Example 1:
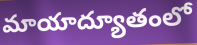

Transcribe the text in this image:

మాయాద్యూతంలో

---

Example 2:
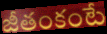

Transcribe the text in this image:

జీతంకంటే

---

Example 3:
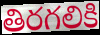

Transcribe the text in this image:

తిరగలికి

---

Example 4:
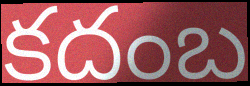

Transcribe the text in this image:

కదంబ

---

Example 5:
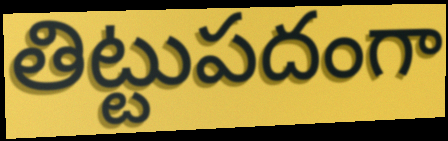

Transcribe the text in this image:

తిట్టుపదంగా